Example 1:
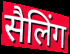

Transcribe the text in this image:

सैलिंग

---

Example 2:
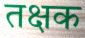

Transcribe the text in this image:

तक्षक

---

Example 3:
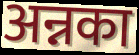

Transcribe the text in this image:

अन्नका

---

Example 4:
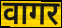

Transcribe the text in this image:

वागर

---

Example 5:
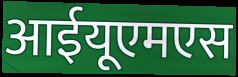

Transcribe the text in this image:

आईयूएमएस